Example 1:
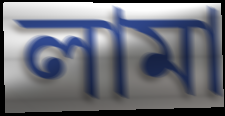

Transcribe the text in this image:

লামা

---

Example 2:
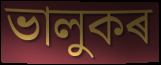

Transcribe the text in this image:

ভালুকৰ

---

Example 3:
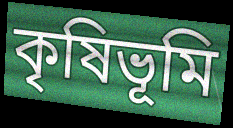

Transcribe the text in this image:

কৃষিভূমি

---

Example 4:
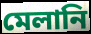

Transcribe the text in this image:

মেলানি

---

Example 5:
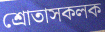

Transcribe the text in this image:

শ্ৰোতাসকলক